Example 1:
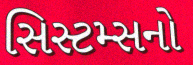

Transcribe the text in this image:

સિસ્ટમ્સનો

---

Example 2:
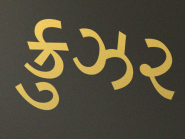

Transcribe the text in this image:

ક્રુઝર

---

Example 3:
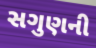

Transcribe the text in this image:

સગુણની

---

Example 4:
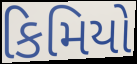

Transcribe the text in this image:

કિમિયો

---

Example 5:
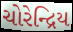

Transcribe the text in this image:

ચોરેન્દ્રિય